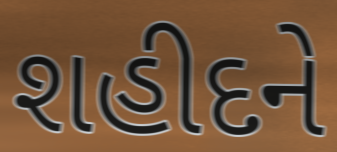
શહીદને